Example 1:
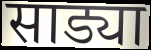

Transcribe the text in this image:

साड्या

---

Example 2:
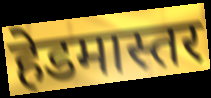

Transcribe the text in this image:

हेडमास्तर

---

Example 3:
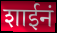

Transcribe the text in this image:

शाईनं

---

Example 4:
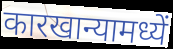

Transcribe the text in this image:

कारखान्यामध्यें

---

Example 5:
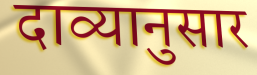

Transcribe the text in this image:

दाव्यानुसार